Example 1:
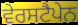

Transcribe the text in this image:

ਵੇਰਸਟੈਪੇਨ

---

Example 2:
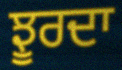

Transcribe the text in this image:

ਝੂਰਦਾ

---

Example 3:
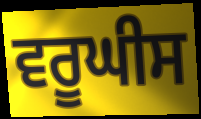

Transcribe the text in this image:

ਵਰੂਘੀਸ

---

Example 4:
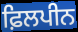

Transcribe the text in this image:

ਫ਼ਿਲਪੀਨ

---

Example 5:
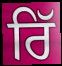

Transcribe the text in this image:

ਰਿੱ